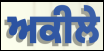
ਅਕੀਲੇ